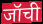
जॉची